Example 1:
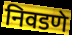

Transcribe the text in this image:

निवडणे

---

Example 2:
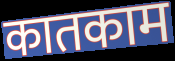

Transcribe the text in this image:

कातकाम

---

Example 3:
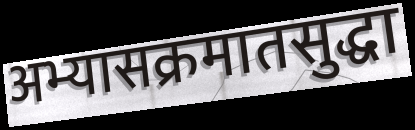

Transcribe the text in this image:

अभ्यासक्रमातसुद्धा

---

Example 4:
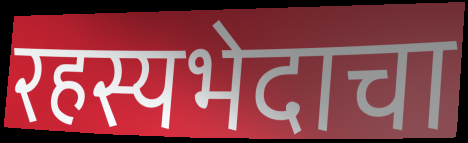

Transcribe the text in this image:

रहस्यभेदाचा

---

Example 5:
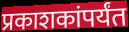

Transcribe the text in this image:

प्रकाशकांपर्यंत